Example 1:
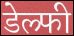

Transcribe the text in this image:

डेल्फी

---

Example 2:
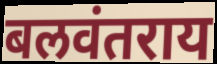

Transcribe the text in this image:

बलवंतराय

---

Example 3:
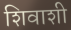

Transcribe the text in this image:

शिवाशी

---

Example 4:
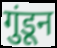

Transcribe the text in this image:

गुंडून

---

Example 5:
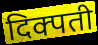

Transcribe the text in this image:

दिक्पती